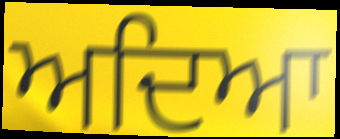
ਅਦਿਆ